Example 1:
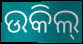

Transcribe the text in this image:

ଉକିଲ୍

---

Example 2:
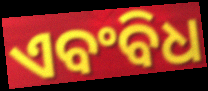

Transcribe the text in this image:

ଏବଂବିଧ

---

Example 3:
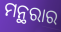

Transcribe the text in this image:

ମନ୍ଥରାର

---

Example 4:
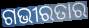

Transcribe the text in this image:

ଗଭୀରତାର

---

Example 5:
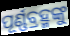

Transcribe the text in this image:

ପୂର୍ଣ୍ଣବ୍ରହ୍ମଙ୍କୁ